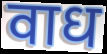
वाध